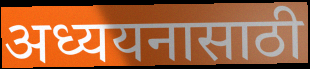
अध्ययनासाठी